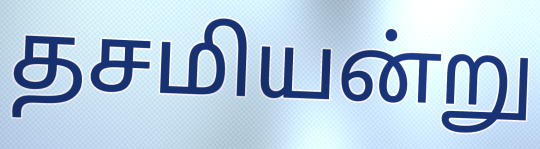
தசமியன்று